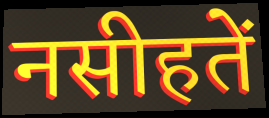
नसीहतें